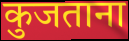
कुजताना